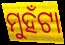
ମୁହଁଟା